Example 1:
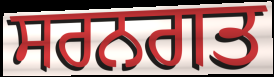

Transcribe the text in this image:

ਸਰਨਗਤ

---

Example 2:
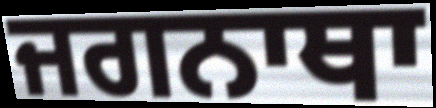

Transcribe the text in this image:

ਜਗਨਾਥਾ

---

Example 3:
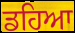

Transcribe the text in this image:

ਡਹਿਆ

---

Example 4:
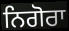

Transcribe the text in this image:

ਨਿਗੋਰਾ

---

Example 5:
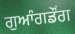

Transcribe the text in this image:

ਗੁਆੰਗਡੌਂਗ